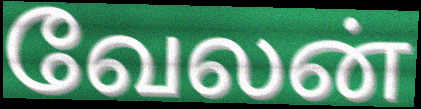
வேலன்